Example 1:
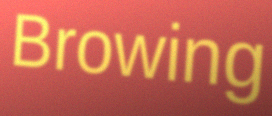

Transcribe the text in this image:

Browing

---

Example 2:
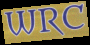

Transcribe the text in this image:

WRC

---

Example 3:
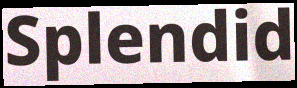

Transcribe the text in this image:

Splendid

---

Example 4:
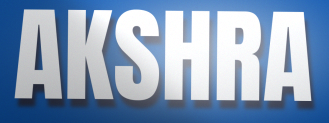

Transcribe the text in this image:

AKSHRA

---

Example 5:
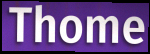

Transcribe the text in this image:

Thome